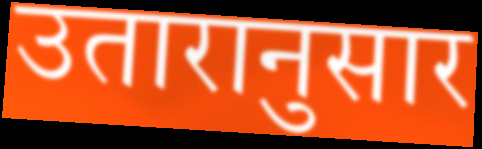
उतारानुसार